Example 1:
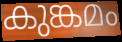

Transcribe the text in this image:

കുങ്കമം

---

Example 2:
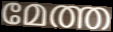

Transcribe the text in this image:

മേത്ത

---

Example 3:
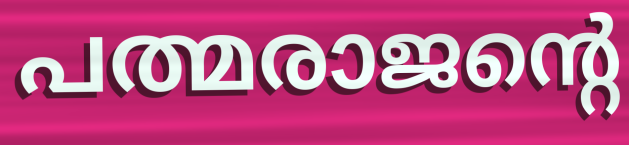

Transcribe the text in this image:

പത്മരാജന്റെ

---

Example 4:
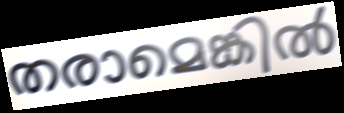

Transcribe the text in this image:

തരാമെങ്കിൽ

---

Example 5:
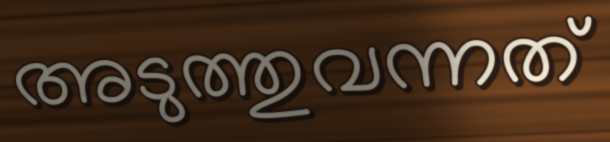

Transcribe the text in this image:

അടുത്തുവന്നത്